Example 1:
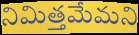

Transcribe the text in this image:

నిమిత్తమేమని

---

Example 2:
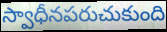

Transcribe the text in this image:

స్వాధీనపరుచుకుంది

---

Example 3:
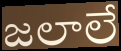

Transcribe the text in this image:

జలాలే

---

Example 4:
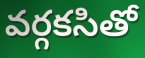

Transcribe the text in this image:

వర్గకసితో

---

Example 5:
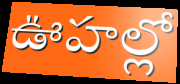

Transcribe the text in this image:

ఊహల్లో